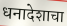
धनादेशाचा